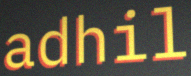
adhil